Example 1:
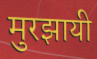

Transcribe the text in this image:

मुरझायी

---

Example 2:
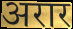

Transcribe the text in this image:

अरार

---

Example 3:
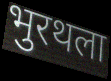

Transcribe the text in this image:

भुरथला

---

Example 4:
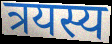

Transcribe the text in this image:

त्रयस्य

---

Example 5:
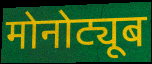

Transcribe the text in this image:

मोनोट्यूब